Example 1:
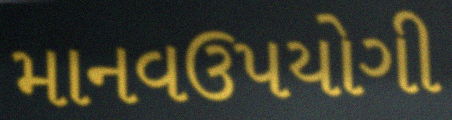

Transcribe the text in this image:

માનવઉપયોગી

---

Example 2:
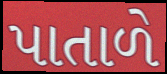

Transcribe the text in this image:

પાતાળે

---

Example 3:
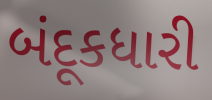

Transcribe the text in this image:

બંદૂકધારી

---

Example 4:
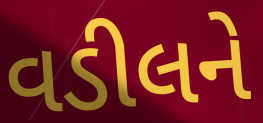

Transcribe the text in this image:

વડીલને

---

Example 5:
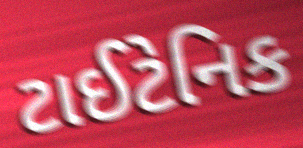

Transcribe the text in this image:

ટાઈટેનિક